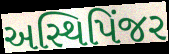
અસ્થિપિંજર